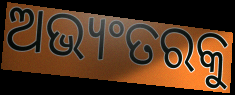
ଅଭ୍ୟଂତରକୁ